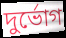
দুর্ভোগ